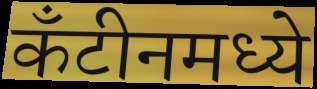
कँटीनमध्ये